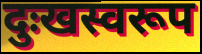
दुःखस्वरूप